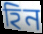
হিন